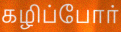
கழிப்போர்